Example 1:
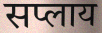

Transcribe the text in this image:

सप्लाय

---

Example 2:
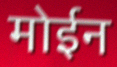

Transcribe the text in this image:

मोईन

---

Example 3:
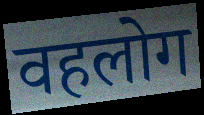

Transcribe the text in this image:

वहलोग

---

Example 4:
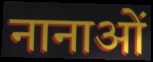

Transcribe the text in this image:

नानाओं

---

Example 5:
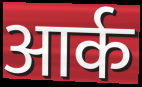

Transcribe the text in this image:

आर्क